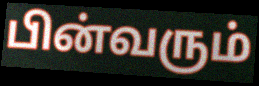
பின்வரும்